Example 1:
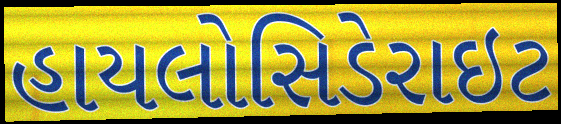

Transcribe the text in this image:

હાયલોસિડેરાઇટ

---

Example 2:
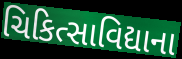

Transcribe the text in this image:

ચિકિત્સાવિદ્યાના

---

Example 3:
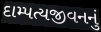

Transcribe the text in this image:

દામ્પત્યજીવનનું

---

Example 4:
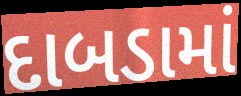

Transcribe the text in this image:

દાબડામાં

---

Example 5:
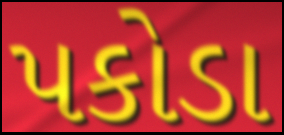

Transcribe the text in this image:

પકોડા